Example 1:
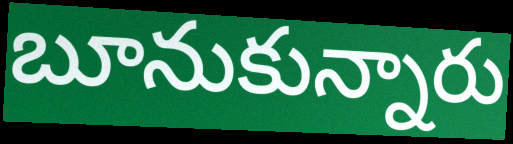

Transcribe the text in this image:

బూనుకున్నారు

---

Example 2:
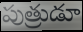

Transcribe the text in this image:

పుత్రుడూ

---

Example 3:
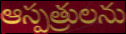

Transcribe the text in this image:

ఆస్పత్రులను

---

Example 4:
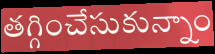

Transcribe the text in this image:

తగ్గించేసుకున్నాం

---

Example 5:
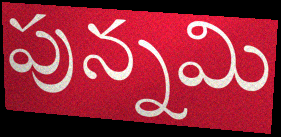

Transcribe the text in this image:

పున్నమి